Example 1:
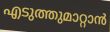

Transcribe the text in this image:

എടുത്തുമാറ്റാൻ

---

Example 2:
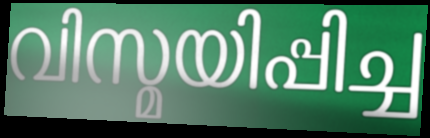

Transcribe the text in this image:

വിസ്മയിപ്പിച്ച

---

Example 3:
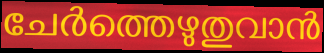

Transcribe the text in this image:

ചേർത്തെഴുതുവാൻ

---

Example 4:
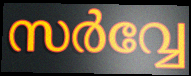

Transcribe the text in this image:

സർവ്വേ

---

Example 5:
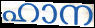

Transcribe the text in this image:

ഹാന